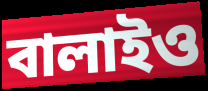
বালাইও